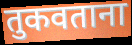
तुकवताना